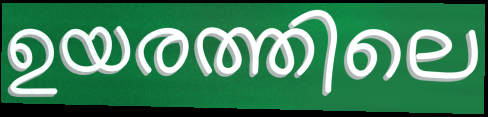
ഉയരത്തിലെ